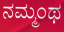
ನಮ್ಮಂಥ